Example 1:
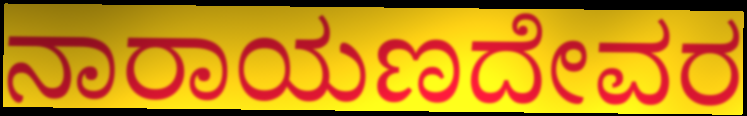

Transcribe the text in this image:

ನಾರಾಯಣದೇವರ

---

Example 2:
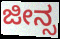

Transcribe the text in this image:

ಜೀನ್ಸ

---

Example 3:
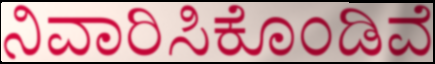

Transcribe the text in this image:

ನಿವಾರಿಸಿಕೊಂಡಿವೆ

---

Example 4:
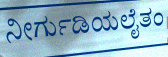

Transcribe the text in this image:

ನೀರ್ಗುಡಿಯಲೈತಂ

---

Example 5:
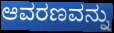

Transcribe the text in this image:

ಆವರಣವನ್ನು